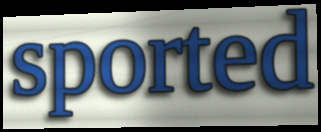
sported